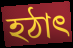
হঠাৎ